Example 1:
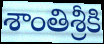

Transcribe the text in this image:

శాంతిశ్రీకి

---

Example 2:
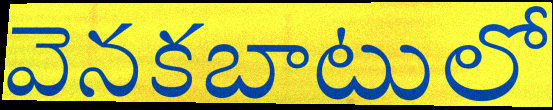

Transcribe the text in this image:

వెనకబాటులో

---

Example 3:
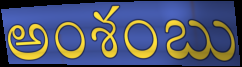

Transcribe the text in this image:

అంశంబు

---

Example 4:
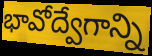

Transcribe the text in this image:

భావోద్వేగాన్ని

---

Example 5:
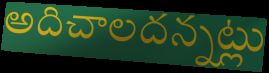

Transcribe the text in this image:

అదిచాలదన్నట్లు